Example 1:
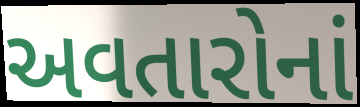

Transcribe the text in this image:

અવતારોનાં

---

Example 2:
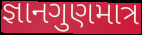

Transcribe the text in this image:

જ્ઞાનગુણમાત્ર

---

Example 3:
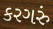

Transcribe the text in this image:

કરગરું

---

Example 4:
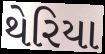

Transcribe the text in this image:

થેરિયા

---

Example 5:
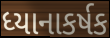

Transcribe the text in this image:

ધ્યાનાકર્ષક